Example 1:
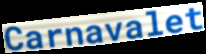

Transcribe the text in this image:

Carnavalet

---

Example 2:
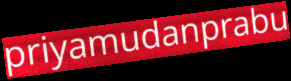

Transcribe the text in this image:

priyamudanprabu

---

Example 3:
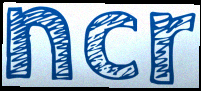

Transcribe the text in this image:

ncr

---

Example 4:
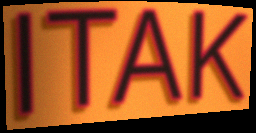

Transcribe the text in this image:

ITAK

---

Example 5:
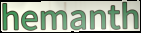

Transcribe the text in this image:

hemanth